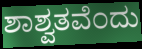
ಶಾಶ್ವತವೆಂದು